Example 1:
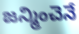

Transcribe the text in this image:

జన్మించెనే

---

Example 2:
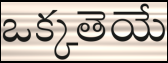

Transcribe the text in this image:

ఒక్కతెయే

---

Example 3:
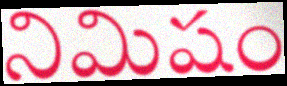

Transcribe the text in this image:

నిమిషం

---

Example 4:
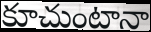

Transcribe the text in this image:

కూచుంటానా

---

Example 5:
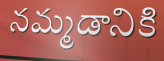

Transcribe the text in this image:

నమ్మడానికి